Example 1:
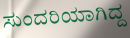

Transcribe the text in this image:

ಸುಂದರಿಯಾಗಿದ್ದ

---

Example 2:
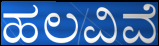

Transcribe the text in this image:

ಹಲವಿವೆ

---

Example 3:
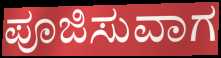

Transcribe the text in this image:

ಪೂಜಿಸುವಾಗ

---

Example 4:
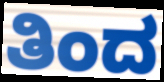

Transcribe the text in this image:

ತಿಂದ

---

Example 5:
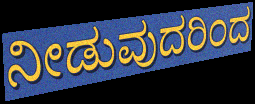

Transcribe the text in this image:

ನೀಡುವುದರಿಂದ